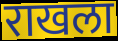
राखला